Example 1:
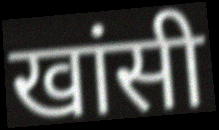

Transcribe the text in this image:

खांसी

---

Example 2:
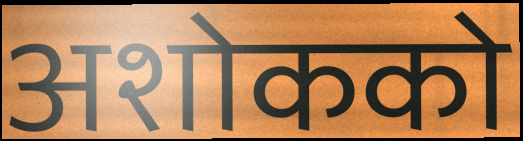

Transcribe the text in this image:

अशोकको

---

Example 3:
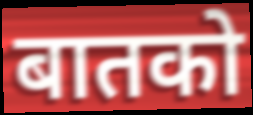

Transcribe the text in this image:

बातको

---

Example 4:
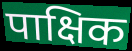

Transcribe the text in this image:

पाक्षिक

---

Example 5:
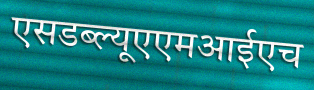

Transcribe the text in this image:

एसडब्ल्यूएएमआईएच